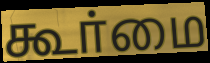
கூர்மை